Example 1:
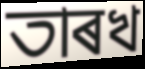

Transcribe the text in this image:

তাৰখ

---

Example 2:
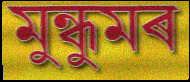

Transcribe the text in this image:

মুন্ধুমৰ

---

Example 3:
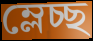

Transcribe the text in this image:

ম্লেচ্ছ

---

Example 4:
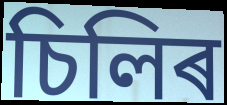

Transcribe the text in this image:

চিলিৰ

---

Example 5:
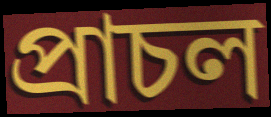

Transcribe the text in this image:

প্ৰাচল